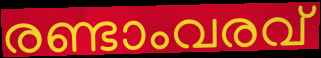
രണ്ടാംവരവ്